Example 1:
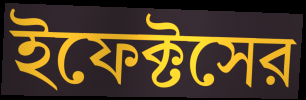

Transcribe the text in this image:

ইফেক্টসের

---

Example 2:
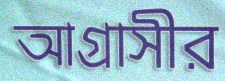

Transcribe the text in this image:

আগ্রাসীর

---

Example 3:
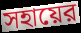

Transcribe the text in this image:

সহায়ের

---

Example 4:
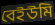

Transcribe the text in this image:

বেইউমি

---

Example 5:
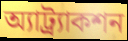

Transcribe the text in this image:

অ্যাট্র্যাকশন